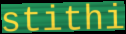
stithi